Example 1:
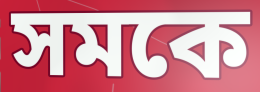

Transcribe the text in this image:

সমকে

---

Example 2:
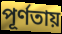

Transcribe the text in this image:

পূর্ণতায়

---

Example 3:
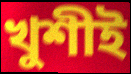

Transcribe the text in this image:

খুশীই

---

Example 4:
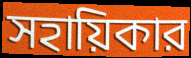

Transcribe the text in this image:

সহায়িকার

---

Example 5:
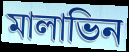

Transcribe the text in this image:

মালাভিন